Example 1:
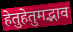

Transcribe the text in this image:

हेतुहेतुमद्भाव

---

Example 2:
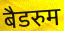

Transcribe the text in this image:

बैडरुम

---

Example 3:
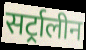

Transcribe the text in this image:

सर्ट्रालीन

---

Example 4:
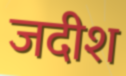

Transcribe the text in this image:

जदीश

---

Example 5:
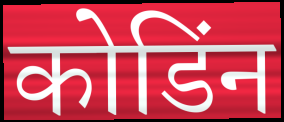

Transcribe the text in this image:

कोडिंन